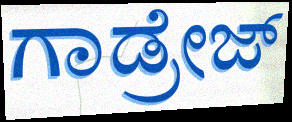
ಗಾಡ್ರೇಜ್